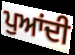
ਪੁਆਂਦੀ